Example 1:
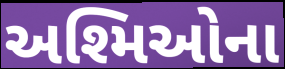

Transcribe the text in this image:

અશ્મિઓના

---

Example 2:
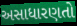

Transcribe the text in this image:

અસાધારણતો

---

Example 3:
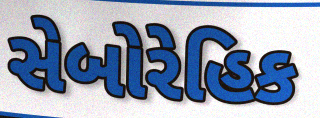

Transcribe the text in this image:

સેબોરેહિક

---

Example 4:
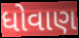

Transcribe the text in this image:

ધોવાણ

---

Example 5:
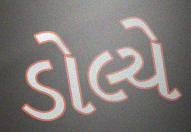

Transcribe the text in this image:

ડોલ્યે